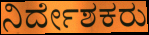
ನಿರ್ದೇಶಕರು